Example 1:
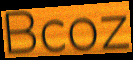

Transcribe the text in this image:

Bcoz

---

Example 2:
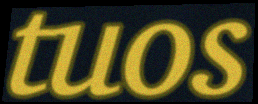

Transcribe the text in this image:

tuos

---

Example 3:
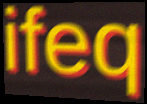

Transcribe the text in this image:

ifeq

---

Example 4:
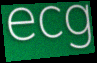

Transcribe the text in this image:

ecg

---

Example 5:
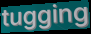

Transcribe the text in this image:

tugging